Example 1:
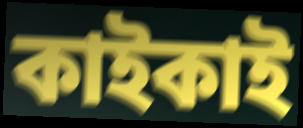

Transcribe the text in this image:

কাইকাই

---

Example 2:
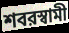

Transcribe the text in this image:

শবরস্বামী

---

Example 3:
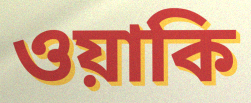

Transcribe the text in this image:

ওয়াকি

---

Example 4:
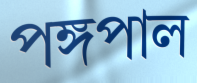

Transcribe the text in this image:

পঙ্গপাল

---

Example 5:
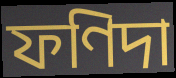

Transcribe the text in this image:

ফণিদা